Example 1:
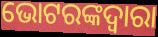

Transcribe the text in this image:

ଭୋଟରଙ୍କଦ୍ଵାରା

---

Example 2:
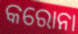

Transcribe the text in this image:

କରୋନା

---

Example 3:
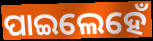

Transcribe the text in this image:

ପାଇଲେହେଁ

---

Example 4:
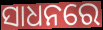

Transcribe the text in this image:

ସାଧନରେ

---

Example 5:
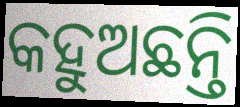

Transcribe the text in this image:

କହୁଅଛନ୍ତି